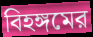
বিহঙ্গমের